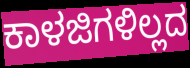
ಕಾಳಜಿಗಳಿಲ್ಲದ